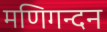
मणिगन्दन